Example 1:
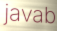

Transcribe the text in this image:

javab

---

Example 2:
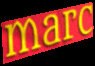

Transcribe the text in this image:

marc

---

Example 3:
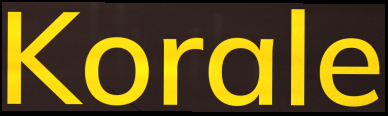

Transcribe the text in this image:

Korale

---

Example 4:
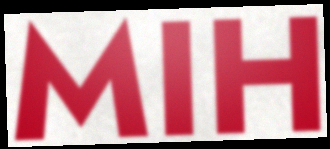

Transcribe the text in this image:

MIH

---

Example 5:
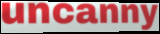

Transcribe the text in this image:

uncanny